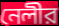
নেলীর